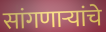
सांगणार्‍यांचे